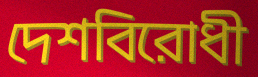
দেশবিরোধী